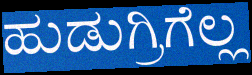
ಹುಡುಗ್ರಿಗೆಲ್ಲ